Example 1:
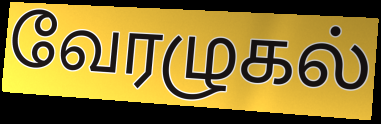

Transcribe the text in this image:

வேரழுகல்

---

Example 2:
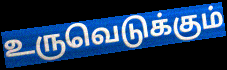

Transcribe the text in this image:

உருவெடுக்கும்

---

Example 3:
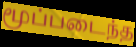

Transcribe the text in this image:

மூப்படைந்த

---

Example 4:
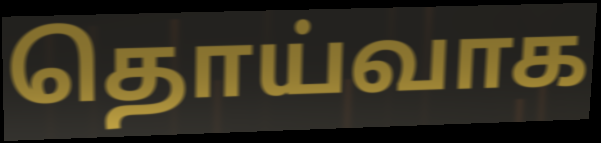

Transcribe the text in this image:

தொய்வாக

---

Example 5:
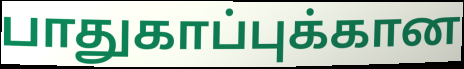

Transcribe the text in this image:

பாதுகாப்புக்கான